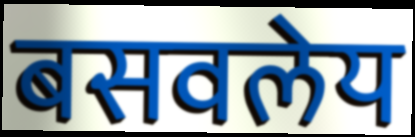
बसवलेय